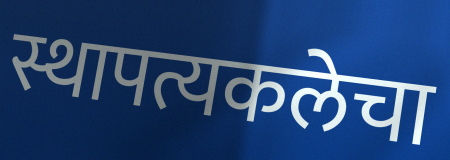
स्थापत्यकलेचा